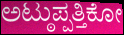
ಅಟ್ಠುಪ್ಪತ್ತಿಕೋ